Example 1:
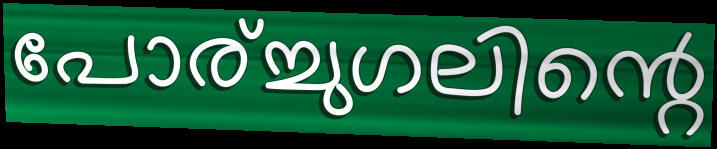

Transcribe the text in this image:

പോര്ച്ചുഗലിന്റെ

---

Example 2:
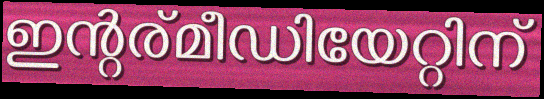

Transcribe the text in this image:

ഇന്റര്മീഡിയേറ്റിന്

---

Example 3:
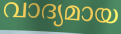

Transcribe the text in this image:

വാദ്യമായ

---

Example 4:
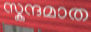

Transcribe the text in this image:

സ്കന്ദമാത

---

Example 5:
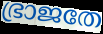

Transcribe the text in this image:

ഭ്രാജതേ